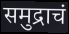
समुद्राचं